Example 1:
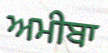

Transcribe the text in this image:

ਅਮੀਬਾ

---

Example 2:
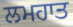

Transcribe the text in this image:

ਲਮਹਾਤ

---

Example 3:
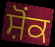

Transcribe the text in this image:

ਸ਼ੋਂਕ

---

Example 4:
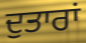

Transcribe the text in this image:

ਦੁਤਾਰਾਂ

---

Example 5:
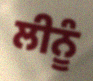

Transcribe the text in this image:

ਲੀਨੂੰ